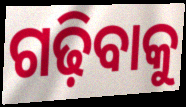
ଗଢ଼ିବାକୁ